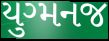
યુગ્મનજ